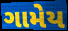
ગામેય